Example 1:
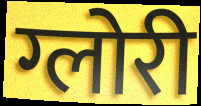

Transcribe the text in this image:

ग्लोरी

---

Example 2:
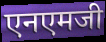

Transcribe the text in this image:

एनएमजी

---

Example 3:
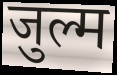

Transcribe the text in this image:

जुल्म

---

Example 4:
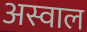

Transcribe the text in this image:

अस्वाल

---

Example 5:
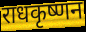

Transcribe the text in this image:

राधकृष्णन